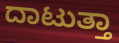
ದಾಟುತ್ತಾ